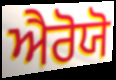
ਐਰੋਯੋ